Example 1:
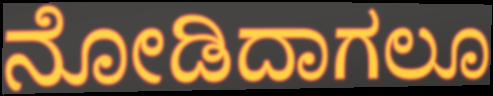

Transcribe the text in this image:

ನೋಡಿದಾಗಲೂ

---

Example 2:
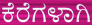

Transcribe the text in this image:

ಕೆರೆಗಳಾಗಿ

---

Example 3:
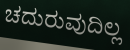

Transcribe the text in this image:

ಚದುರುವುದಿಲ್ಲ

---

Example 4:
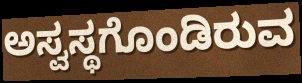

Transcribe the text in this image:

ಅಸ್ವಸ್ಥಗೊಂಡಿರುವ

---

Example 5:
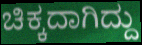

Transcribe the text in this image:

ಚಿಕ್ಕದಾಗಿದ್ದು